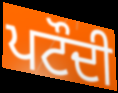
ਪਟੌਦੀ